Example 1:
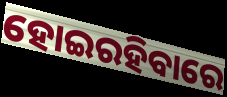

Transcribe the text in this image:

ହୋଇରହିବାରେ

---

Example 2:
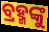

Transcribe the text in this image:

ବ୍ରହ୍ମଙ୍କୁ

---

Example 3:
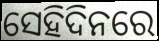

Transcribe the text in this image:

ସେହିଦିନରେ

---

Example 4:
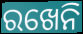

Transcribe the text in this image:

ରଖେନି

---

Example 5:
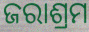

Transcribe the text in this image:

ଜରାଶ୍ରମ